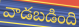
వాడబడింది